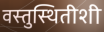
वस्तुस्थितीशी